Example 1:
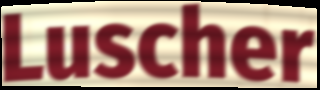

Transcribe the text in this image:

Luscher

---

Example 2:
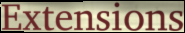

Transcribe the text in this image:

Extensions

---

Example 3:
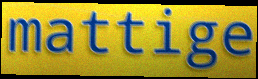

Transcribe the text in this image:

mattige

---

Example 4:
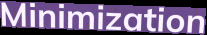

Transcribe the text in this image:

Minimization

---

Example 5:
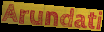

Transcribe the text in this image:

Arundati